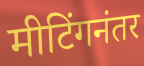
मीटिंगनंतर